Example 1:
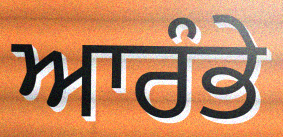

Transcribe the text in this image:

ਆਰੰਭੇ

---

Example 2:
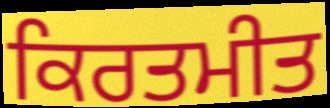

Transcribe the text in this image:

ਕਿਰਤਮੀਤ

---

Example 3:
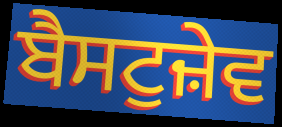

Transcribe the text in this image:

ਬੈਸਟੁਜ਼ੇਵ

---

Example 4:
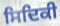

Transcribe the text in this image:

ਸਿਦਿਕੀ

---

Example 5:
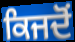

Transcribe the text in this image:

ਕਿਜਦੋਂ